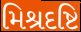
મિશ્રદષ્ટિ